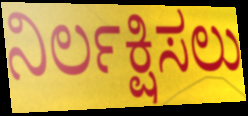
ನಿರ್ಲಕ್ಷಿಸಲು